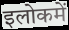
इलोकमें